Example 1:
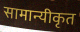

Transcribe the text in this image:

सामान्यीकृत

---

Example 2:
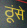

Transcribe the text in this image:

ठूंसे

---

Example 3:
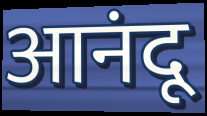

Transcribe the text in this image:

आनंदू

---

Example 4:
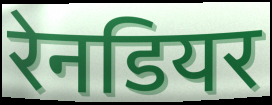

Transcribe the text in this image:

रेनडियर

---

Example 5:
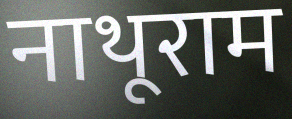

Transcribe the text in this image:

नाथूराम